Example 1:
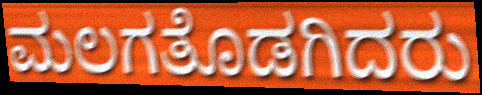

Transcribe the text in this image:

ಮಲಗತೊಡಗಿದರು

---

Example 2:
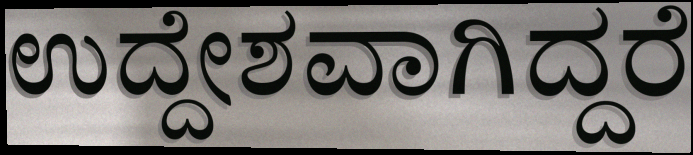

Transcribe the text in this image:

ಉದ್ದೇಶವಾಗಿದ್ದರೆ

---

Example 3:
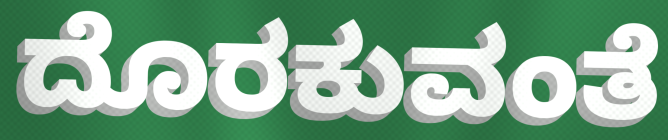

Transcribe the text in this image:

ದೊರಕುವಂತೆ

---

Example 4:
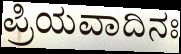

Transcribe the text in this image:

ಪ್ರಿಯವಾದಿನಃ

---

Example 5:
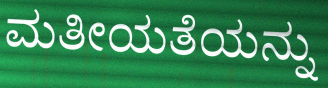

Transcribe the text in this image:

ಮತೀಯತೆಯನ್ನು